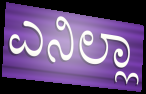
ಎನಿಲ್ಲಾ